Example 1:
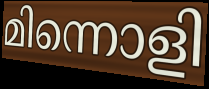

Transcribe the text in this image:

മിന്നൊളി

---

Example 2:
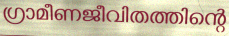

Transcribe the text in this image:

ഗ്രാമീണജീവിതത്തിന്റെ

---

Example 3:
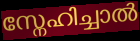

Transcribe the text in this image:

സ്നേഹിച്ചാൽ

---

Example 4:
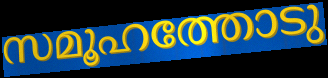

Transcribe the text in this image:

സമൂഹത്തോടു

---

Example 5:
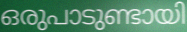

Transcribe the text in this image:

ഒരുപാടുണ്ടായി